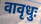
वावृधुः